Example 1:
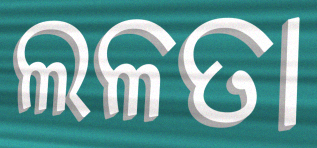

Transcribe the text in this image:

ଲଳତା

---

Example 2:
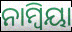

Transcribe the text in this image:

ନାମ୍ୱିୟା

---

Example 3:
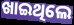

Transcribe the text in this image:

ଖାଇଥିଲେ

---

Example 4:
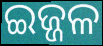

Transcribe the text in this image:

ଇଜ୍ଜଳ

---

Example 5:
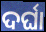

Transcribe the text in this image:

ଦର୍ଘା